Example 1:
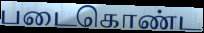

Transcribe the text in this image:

படைகொண்ட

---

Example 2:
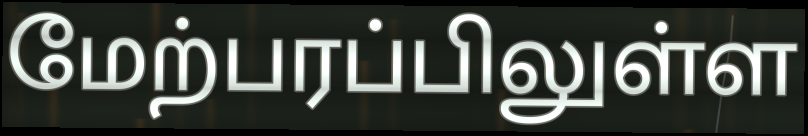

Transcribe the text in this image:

மேற்பரப்பிலுள்ள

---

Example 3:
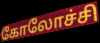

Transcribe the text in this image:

கோலோச்சி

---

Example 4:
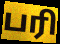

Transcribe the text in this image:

பரி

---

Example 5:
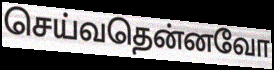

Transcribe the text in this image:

செய்வதென்னவோ